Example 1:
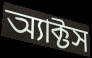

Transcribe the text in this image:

অ্যাক্টস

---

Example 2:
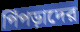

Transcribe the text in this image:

পিঁপড়াদের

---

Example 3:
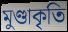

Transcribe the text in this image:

মুণ্ডাকৃতি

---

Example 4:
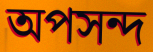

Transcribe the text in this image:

অপসন্দ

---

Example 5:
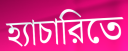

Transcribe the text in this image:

হ্যাচারিতে